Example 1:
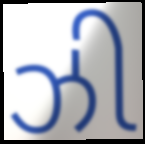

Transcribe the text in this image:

ઝી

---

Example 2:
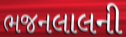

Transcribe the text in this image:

ભજનલાલની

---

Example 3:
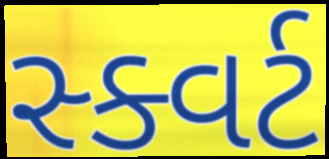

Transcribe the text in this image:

સ્ક્વર્ટ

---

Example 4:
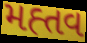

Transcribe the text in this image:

મહ્તવ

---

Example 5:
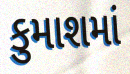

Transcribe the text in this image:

કુમાશમાં